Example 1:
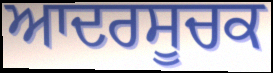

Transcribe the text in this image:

ਆਦਰਸੂਚਕ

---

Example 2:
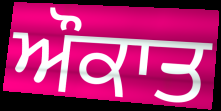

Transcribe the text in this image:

ਔਕਾਤ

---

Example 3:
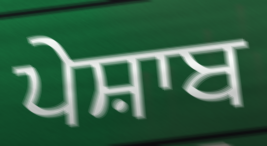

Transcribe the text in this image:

ਪੇਸ਼ਾਬ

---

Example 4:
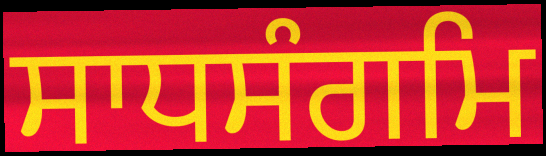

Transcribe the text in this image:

ਸਾਧਸੰਗਮਿ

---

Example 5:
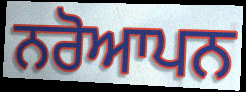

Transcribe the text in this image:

ਨਰੋਆਪਨ